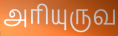
அரியுருவ